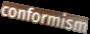
conformism